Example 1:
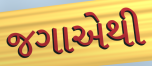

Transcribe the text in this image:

જગાએથી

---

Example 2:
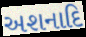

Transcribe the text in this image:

અશનાદિ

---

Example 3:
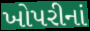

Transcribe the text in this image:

ખોપરીનાં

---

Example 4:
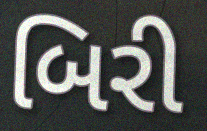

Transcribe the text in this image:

બિરી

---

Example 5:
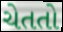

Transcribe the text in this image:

ચેતતો